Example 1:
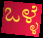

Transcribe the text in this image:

ಒಳ್ಳೆ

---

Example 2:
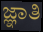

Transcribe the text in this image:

ಜ್ಞಾತಿ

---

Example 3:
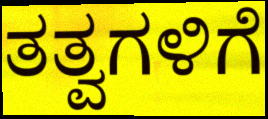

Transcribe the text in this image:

ತತ್ವಗಳಿಗೆ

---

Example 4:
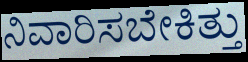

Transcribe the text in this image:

ನಿವಾರಿಸಬೇಕಿತ್ತು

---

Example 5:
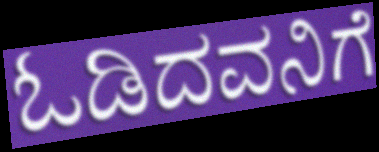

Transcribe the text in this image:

ಓಡಿದವನಿಗೆ